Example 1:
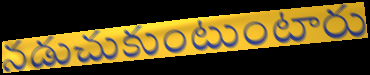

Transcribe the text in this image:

నడుచుకుంటుంటారు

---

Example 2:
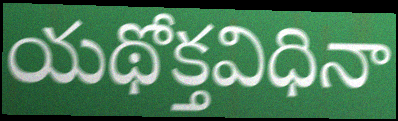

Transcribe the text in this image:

యథోక్తవిధినా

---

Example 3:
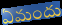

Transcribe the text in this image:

ఏమందు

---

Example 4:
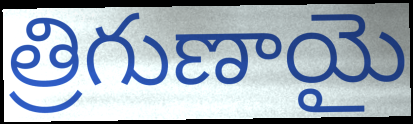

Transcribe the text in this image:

త్రిగుణాయై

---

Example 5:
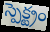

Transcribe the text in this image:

స్పెక్ట్రం